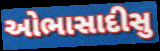
ઓભાસાદીસુ